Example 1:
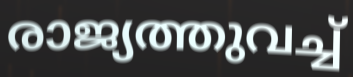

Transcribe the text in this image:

രാജ്യത്തുവച്ച്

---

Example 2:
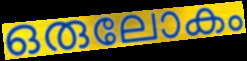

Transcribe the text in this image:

ഒരുലോകം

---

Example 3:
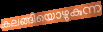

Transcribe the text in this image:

കലങ്ങിയൊഴുകുന്ന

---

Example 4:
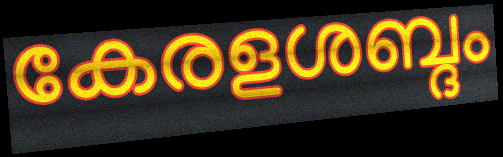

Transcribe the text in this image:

കേരളശബ്ദം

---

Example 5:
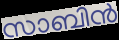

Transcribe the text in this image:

സാബിൻ